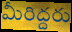
మీరిద్దరు